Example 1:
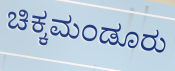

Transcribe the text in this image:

ಚಿಕ್ಕಮಂಡೂರು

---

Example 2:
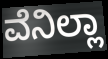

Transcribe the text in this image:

ವೆನಿಲ್ಲಾ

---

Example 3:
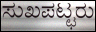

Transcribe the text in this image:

ಸುಖಪಟ್ಟರು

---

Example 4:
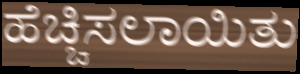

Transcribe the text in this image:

ಹೆಚ್ಚಿಸಲಾಯಿತು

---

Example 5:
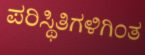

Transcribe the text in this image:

ಪರಿಸ್ಥಿತಿಗಳಿಗಿಂತ